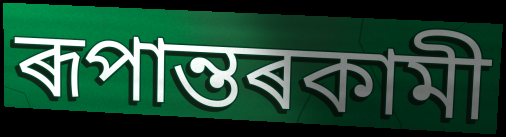
ৰূপান্তৰকামী